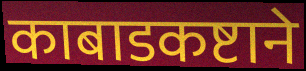
काबाडकष्टाने